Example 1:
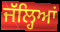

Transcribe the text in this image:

ਜੱਲ੍ਹਿਆਂ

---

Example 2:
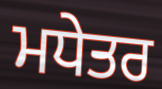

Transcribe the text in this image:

ਮਧੇਤਰ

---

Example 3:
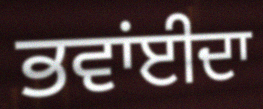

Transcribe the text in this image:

ਭਵਾਂਈਦਾ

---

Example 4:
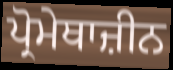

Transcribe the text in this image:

ਪ੍ਰੋਮੇਥਾਜ਼ੀਨ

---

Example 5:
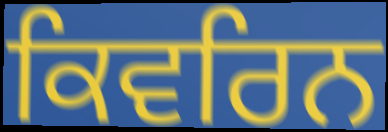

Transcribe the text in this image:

ਕਿਵਰਿਨ